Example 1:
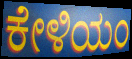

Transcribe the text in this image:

ಕೇಳಿಯಂ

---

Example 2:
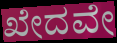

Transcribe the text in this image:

ಖೇದವೇ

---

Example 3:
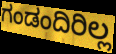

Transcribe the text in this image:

ಗಂಡಂದಿರಿಲ್ಲ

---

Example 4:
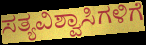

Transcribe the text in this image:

ಸತ್ಯವಿಶ್ವಾಸಿಗಳಿಗೆ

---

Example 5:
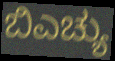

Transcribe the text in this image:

ಬಿಎಚ್ಯು